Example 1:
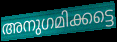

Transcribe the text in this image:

അനുഗമിക്കട്ടെ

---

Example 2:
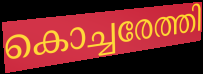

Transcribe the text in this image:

കൊച്ചരേത്തി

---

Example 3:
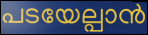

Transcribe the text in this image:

പടയേല്പാൻ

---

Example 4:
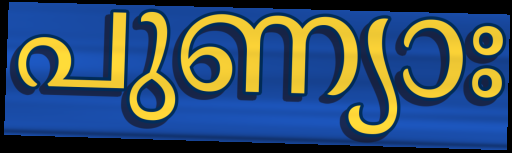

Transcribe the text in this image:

പുണ്യാഃ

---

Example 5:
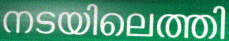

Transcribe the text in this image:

നടയിലെത്തി